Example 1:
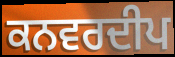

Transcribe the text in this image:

ਕਨਵਰਦੀਪ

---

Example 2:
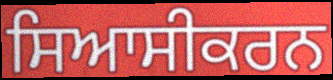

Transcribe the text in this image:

ਸਿਆਸੀਕਰਨ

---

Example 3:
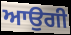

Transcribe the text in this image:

ਆਉਗੀ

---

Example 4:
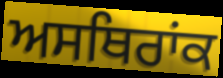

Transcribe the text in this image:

ਅਸਥਿਰਾਂਕ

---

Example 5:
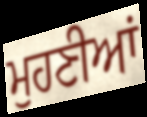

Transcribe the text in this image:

ਮੁਹਣੀਆਂ